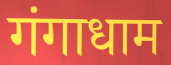
गंगाधाम